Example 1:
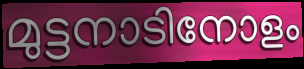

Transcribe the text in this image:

മുട്ടനാടിനോളം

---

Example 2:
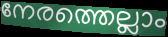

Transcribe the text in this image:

നേരത്തെല്ലാം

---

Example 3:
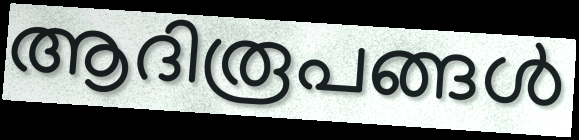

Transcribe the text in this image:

ആദിരൂപങ്ങൾ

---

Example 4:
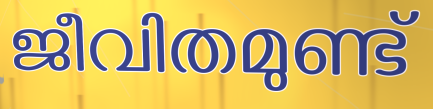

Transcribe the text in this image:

ജീവിതമുണ്ട്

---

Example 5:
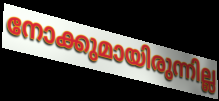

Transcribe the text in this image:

നോക്കുമായിരുന്നില്ല